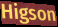
Higson